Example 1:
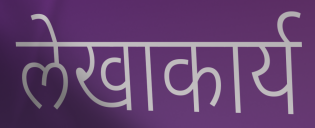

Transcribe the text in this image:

लेखाकार्य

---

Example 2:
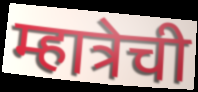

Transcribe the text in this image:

म्हात्रेची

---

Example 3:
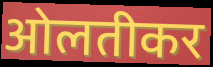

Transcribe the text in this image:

ओलतीकर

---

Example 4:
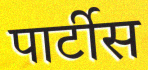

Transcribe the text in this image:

पार्टीस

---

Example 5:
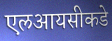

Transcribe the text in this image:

एलआयसीकडे